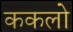
ककलो